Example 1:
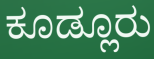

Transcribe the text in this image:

ಕೂಡ್ಲೂರು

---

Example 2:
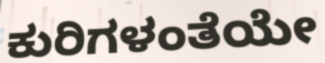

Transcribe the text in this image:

ಕುರಿಗಳಂತೆಯೇ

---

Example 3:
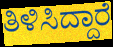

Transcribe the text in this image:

ತಿಳಿಸಿದ್ದಾರೆ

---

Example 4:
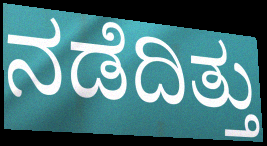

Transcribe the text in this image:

ನಡೆದಿತ್ತು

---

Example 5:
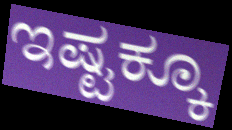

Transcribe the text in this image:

ಇಷ್ಟಕ್ಕೂ